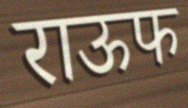
राऊफ